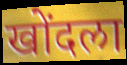
खोंदला